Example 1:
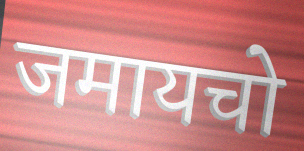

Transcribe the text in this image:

जमायचो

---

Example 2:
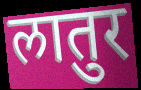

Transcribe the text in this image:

लातुर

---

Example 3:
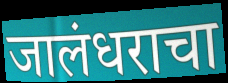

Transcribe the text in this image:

जालंधराचा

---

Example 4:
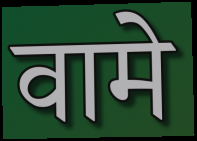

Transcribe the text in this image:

वामे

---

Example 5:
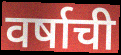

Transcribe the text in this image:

वर्षाची